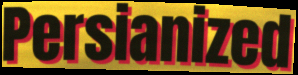
Persianized